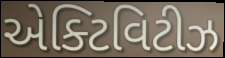
એક્ટિવિટીઝ